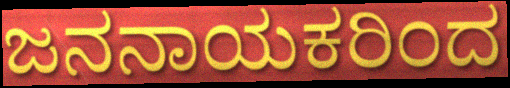
ಜನನಾಯಕರಿಂದ